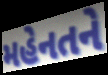
મહેનતને